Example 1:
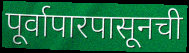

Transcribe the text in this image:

पूर्वापारपासूनची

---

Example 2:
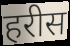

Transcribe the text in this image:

हरीस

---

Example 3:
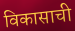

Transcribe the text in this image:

विकासाची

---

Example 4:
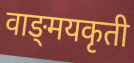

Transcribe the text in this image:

वाङ्‌मयकृती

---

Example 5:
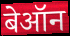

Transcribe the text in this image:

बेऑन